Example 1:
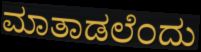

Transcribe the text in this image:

ಮಾತಾಡಲೆಂದು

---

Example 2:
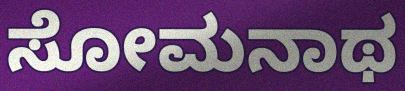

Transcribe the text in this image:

ಸೋಮನಾಥ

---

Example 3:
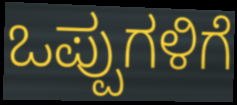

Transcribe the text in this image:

ಒಪ್ಪುಗಳಿಗೆ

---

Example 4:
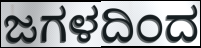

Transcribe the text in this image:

ಜಗಳದಿಂದ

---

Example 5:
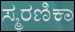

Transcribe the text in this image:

ಸ್ಮರಣಿಕಾ